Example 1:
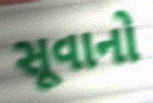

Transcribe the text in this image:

સૂવાનો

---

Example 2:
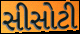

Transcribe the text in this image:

સીસોટી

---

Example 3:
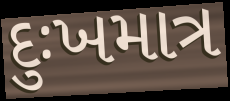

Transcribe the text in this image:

દુઃખમાત્ર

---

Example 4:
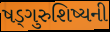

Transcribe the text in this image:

ષડ્ગુરુશિષ્યની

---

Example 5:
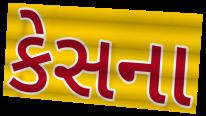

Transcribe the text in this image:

કેસના